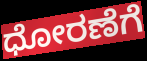
ಧೋರಣೆಗೆ